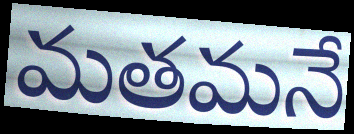
మతమనే